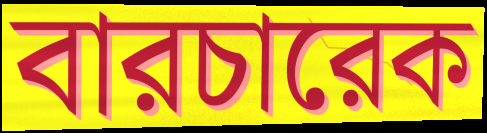
বারচারেক